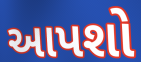
આપશો